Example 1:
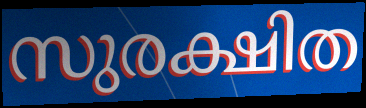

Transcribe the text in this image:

സുരക്ഷിത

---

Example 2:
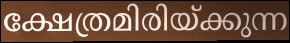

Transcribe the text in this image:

ക്ഷേത്രമിരിയ്ക്കുന്ന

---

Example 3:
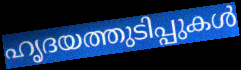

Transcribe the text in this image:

ഹൃദയത്തുടിപ്പുകൾ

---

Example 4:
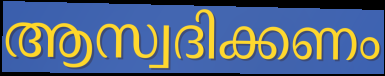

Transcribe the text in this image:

ആസ്വദിക്കണം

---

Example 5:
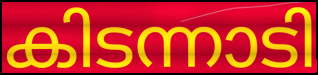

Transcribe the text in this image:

കിടന്നാടി